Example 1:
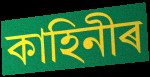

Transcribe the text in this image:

কাহিনীৰ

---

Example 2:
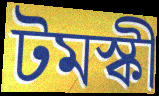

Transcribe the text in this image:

টমস্কী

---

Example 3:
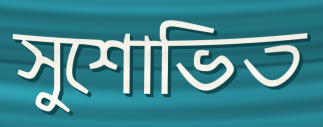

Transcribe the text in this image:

সুশোভিত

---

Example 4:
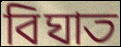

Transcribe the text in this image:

বিঘাত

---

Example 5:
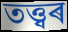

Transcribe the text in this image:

তত্ত্বৰ